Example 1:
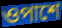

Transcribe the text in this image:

ওপাশে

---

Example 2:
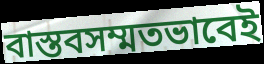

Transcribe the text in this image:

বাস্তবসম্মতভাবেই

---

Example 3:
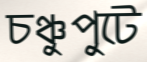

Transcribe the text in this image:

চঞ্চুপুটে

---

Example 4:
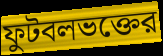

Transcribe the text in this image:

ফুটবলভক্তের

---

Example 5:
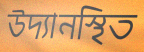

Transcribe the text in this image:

উদ্যানস্থিত